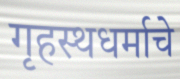
गृहस्थधर्माचे